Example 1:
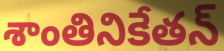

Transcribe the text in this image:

శాంతినికేతన్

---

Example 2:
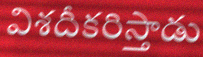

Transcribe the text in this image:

విశదీకరిస్తాడు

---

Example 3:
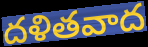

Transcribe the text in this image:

దళితవాద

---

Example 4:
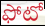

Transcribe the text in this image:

ఫోటో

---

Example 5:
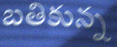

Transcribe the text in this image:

బతికున్న